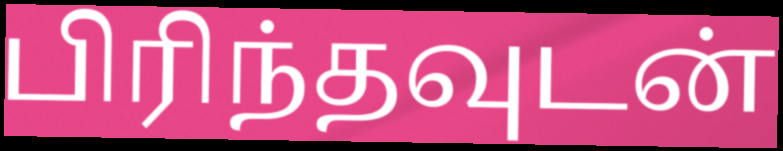
பிரிந்தவுடன்